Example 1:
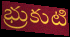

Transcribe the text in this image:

భ్రుకుటి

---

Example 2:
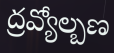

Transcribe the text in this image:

ద్రవ్యోల్బణ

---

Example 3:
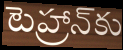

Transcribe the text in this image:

టెహ్రాన్‌కు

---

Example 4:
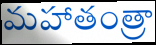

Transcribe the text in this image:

మహాతంత్రా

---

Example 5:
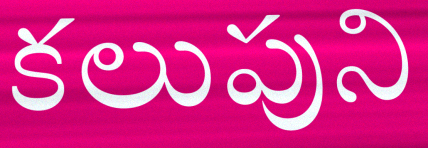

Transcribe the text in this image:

కలుపుని